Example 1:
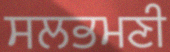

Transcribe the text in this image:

ਸਲਭਮਣੀ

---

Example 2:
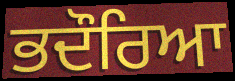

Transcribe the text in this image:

ਭਦੌਰਿਆ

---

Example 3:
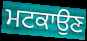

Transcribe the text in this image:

ਮਟਕਾਉਣ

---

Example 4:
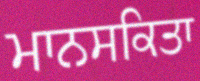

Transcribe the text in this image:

ਮਾਨਸਕਿਤਾ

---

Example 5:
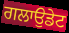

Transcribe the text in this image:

ਗਲਾਉਡੇਟ